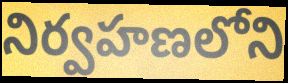
నిర్వహణలోని